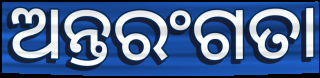
ଅନ୍ତରଂଗତା